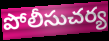
పోలీసుచర్య